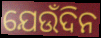
ଯେଉଁଦିନ